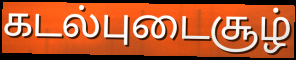
கடல்புடைசூழ்